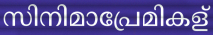
സിനിമാപ്രേമികള്